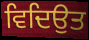
ਵਿਦਿਉਤ